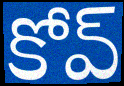
కోవ్